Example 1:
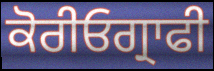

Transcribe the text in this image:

ਕੋਰੀਓਗ੍ਰਾਫੀ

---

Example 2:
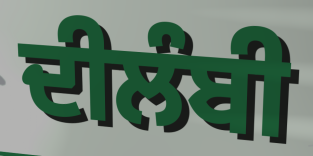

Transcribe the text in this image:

ਦੀਲੰਬੀ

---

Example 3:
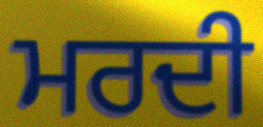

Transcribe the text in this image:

ਮਰਦੀ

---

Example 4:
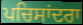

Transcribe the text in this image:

ਪਚਿਸਾਂਦਰਾ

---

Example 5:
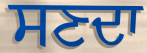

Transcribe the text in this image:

ਸਣਦਾ